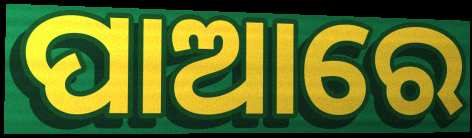
ପାଆରେ